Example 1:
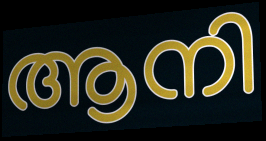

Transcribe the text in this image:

ആനി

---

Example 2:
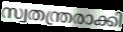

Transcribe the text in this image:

സ്വതന്ത്രരാക്കി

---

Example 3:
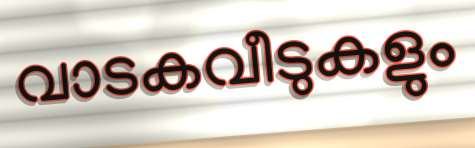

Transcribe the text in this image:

വാടകവീടുകളും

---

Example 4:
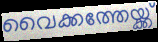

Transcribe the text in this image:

വൈക്കത്തേയ്ക്ക്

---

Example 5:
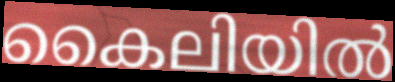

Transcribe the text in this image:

കൈലിയിൽ